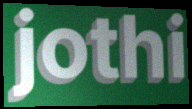
jothi